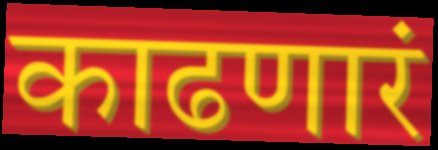
काढणारं